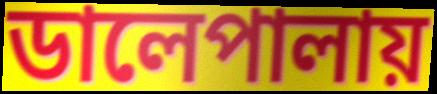
ডালেপালায়